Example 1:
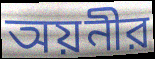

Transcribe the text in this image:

অয়নীর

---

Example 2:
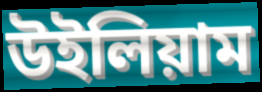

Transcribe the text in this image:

উইলিয়াম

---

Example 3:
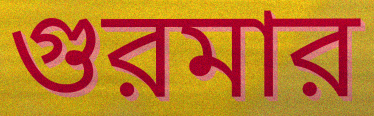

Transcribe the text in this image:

গুরমার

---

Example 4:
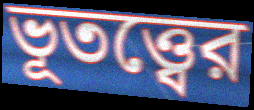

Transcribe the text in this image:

ভূতত্ত্বের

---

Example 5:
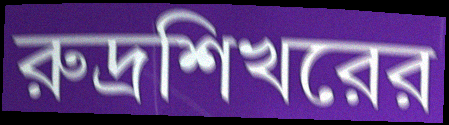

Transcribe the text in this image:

রুদ্রশিখরের